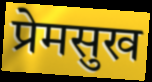
प्रेमसुख